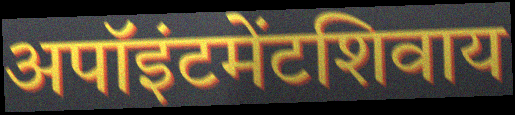
अपॉइंटमेंटशिवाय